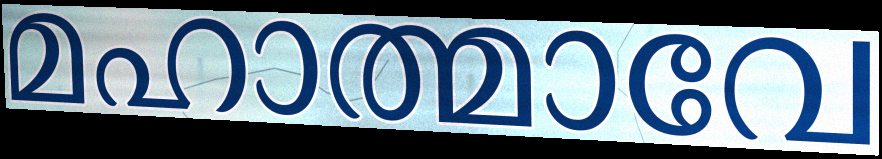
മഹാത്മാവേ